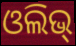
ଓଲିଭ୍